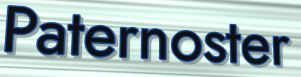
Paternoster